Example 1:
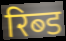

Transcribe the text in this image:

रिब्ड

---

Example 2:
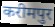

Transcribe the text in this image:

करीमपुर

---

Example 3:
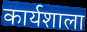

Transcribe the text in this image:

कार्यशाला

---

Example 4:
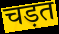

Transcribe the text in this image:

चड़त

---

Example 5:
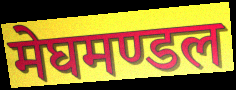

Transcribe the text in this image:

मेघमण्डल